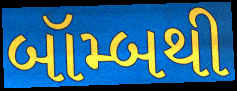
બૉમ્બથી